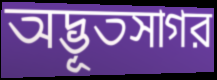
অদ্ভূতসাগর